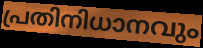
പ്രതിനിധാനവും